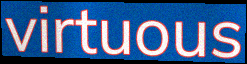
virtuous